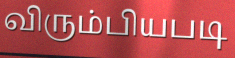
விரும்பியபடி